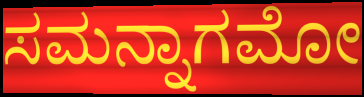
ಸಮನ್ನಾಗಮೋ